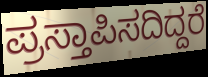
ಪ್ರಸ್ತಾಪಿಸದಿದ್ದರೆ